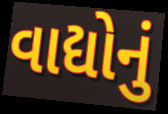
વાદ્યોનું